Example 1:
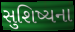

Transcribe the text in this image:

સુશિષ્યના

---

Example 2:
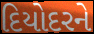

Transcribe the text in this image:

દિયોદરને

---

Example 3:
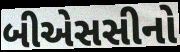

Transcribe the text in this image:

બીએસસીનો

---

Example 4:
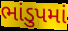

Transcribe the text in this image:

ભાંડુપમાં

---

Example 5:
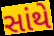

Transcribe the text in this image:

સાંથે